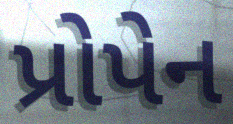
પ્રોપેન